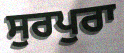
ਸੁਰਪੁਰਾ